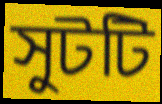
সুটটি